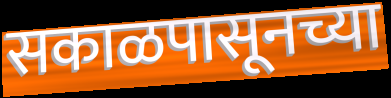
सकाळपासूनच्या